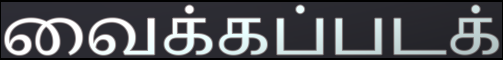
வைக்கப்படக்